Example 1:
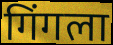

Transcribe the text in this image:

गिंगला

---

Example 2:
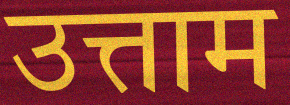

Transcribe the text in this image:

उत्ताम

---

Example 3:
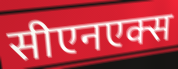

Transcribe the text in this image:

सीएनएक्स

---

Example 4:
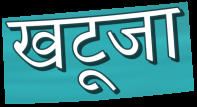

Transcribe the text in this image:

खटूजा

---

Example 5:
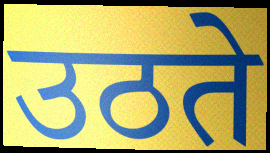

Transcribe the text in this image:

उठते